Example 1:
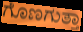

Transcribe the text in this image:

ಗೊಣಗುತ್ತಾ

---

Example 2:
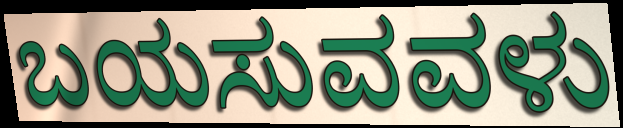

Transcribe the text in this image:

ಬಯಸುವವಳು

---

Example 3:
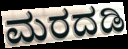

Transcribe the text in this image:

ಮರದಡಿ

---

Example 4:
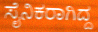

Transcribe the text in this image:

ಸೈನಿಕರಾಗಿದ್ದ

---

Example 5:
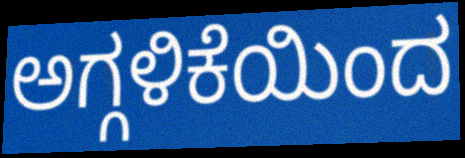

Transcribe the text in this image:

ಅಗ್ಗಳಿಕೆಯಿಂದ